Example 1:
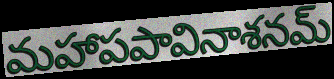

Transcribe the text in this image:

మహాపపావినాశనమ్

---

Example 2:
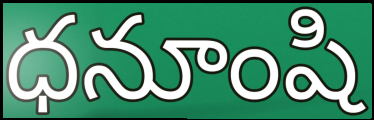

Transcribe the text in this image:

ధనూంషి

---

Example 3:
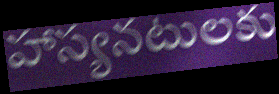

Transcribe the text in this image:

హాస్యనటులకు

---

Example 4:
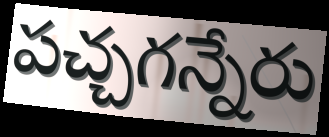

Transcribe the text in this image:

పచ్చగన్నేరు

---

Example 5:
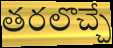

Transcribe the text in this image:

తరలొచ్చే